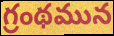
గ్రంథమున